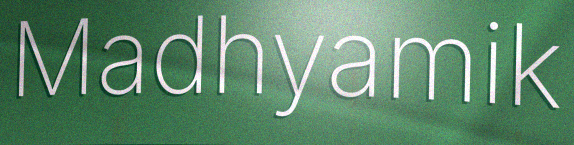
Madhyamik